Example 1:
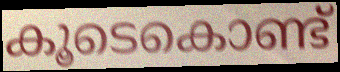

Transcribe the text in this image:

കൂടെകൊണ്ട്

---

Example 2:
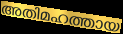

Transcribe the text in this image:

അതിമഹത്തായ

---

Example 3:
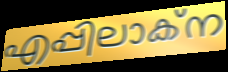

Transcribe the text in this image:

എപ്പിലാക്ന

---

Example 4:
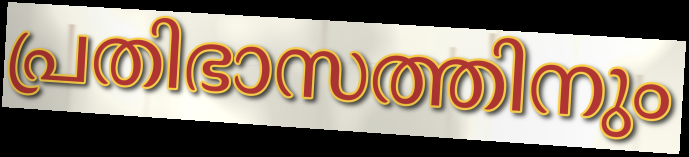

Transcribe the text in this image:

പ്രതിഭാസത്തിനും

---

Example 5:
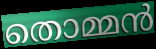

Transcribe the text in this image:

തൊമ്മൻ